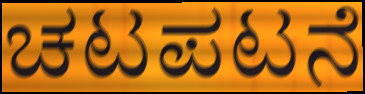
ಚಟಪಟನೆ